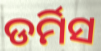
ଡର୍ମିସ